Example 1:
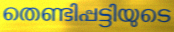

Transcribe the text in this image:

തെണ്ടിപ്പട്ടിയുടെ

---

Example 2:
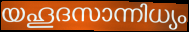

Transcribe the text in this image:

യഹൂദസാന്നിധ്യം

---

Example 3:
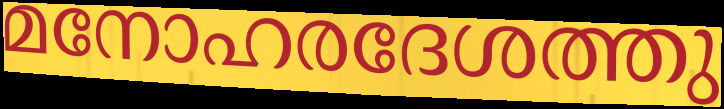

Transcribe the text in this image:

മനോഹരദേശത്തു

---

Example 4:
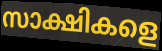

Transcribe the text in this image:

സാക്ഷികളെ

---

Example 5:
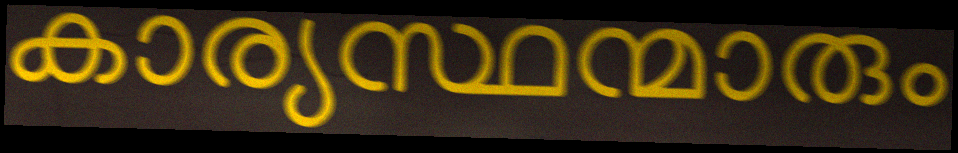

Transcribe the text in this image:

കാര്യസ്ഥന്മാരും